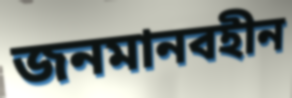
জনমানবহীন